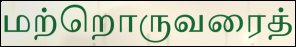
மற்றொருவரைத்